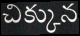
చిక్కున